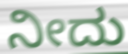
ನೀದು